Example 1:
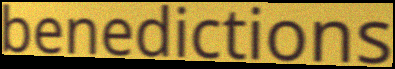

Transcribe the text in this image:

benedictions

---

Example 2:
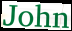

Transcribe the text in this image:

John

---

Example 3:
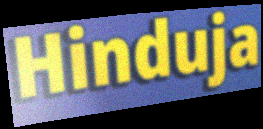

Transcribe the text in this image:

Hinduja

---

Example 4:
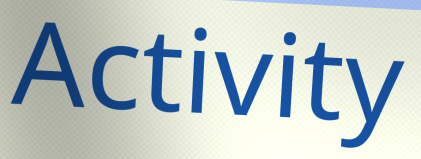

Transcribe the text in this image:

Activity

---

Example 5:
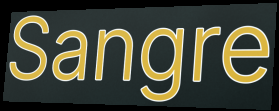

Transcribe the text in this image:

Sangre